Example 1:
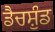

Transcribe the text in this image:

ਡੈਚਸ਼ੁੰਡ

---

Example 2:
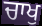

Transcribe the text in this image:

ਚਾਖੁ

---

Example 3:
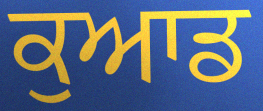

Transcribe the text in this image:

ਕੁਆਡ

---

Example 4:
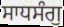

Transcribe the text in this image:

ਸਾਧਸੰਗੁ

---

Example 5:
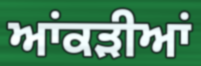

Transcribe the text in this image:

ਆਂਕੜੀਆਂ